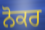
ਨੋਕਰ